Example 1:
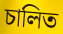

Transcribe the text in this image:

চালিত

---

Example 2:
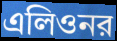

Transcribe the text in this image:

এলিওনর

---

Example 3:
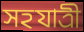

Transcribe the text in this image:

সহযাত্রী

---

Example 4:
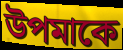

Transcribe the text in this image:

উপমাকে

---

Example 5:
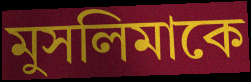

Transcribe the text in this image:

মুসলিমাকে